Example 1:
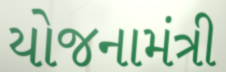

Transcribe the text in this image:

યોજનામંત્રી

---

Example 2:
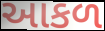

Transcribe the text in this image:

આકળ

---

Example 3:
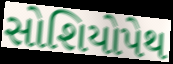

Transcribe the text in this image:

સોશિયોપેથ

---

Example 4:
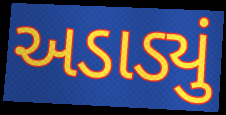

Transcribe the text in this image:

અડાડ્યું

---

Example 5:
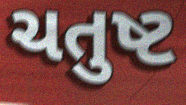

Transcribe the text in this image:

ચતુષ્ટ